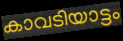
കാവടിയാട്ടം